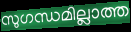
സുഗന്ധമില്ലാത്ത